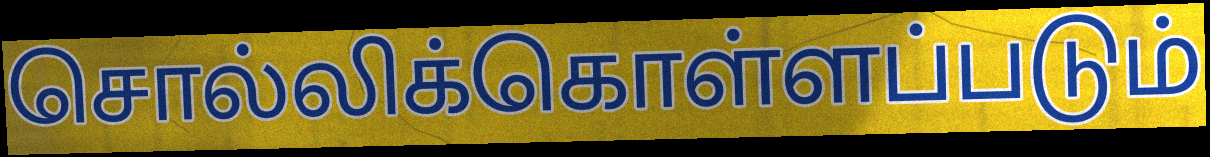
சொல்லிக்கொள்ளப்படும்